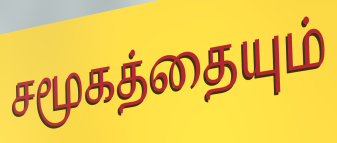
சமூகத்தையும்